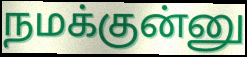
நமக்குன்னு